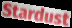
Stardust